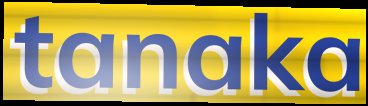
tanaka